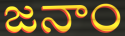
జనాం